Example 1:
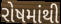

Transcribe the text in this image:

રોષમાંથી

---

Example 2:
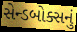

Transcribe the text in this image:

સેન્ડબોક્સનું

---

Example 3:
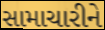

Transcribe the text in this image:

સામાચારીને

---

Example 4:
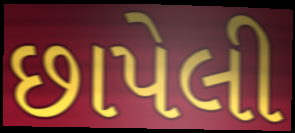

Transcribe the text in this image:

છાપેલી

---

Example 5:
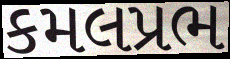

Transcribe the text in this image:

કમલપ્રભ